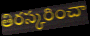
తిరస్కరించా